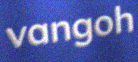
vangoh